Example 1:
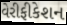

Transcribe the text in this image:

વેરીફીકેશન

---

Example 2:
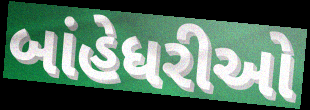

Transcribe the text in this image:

બાંહેધરીઓ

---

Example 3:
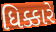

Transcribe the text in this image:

ધિક્કારે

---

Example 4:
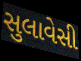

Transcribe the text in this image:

સુલાવેસી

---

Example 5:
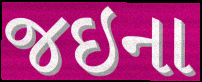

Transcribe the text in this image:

જઇના